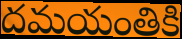
దమయంతికి